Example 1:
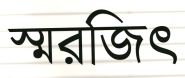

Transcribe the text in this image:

স্মরজিৎ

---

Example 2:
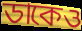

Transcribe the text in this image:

ডাকেও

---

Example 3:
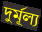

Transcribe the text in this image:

দুর্মূল্য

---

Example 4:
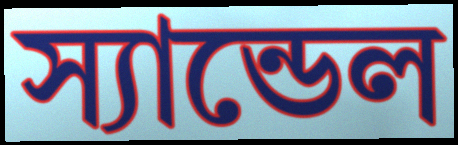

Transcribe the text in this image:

স্যান্ডেল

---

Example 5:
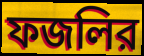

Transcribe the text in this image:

ফজলির